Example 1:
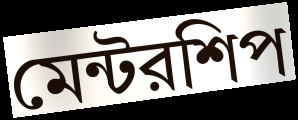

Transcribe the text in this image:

মেন্টরশিপ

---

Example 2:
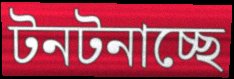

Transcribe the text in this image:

টনটনাচ্ছে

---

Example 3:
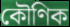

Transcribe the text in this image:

কৌণিক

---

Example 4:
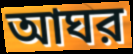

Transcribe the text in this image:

আঘর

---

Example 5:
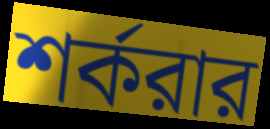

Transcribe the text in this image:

শর্করার